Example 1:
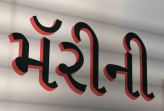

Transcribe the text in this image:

મૅરીની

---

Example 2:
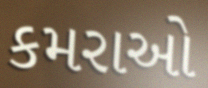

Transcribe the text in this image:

કમરાઓ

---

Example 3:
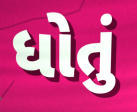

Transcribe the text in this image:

ધોતું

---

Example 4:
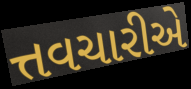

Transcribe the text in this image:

ત્તવચારીએ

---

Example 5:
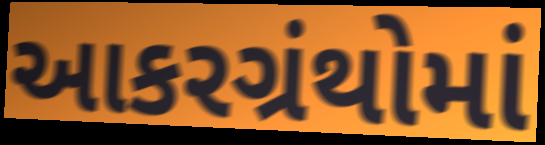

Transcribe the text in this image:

આકરગ્રંથોમાં